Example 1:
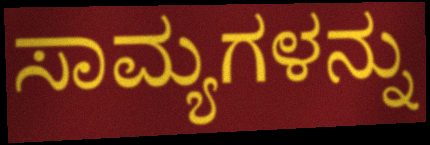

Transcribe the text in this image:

ಸಾಮ್ಯಗಳನ್ನು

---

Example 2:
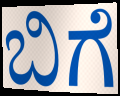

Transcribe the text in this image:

ಬಿಗೆ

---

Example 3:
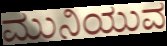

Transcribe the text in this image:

ಮುನಿಯುವ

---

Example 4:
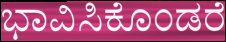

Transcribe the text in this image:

ಭಾವಿಸಿಕೊಂಡರೆ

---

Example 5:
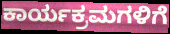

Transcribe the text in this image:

ಕಾರ್ಯಕ್ರಮಗಳಿಗೆ